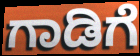
ಗಾಡಿಗೆ